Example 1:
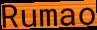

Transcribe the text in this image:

Rumao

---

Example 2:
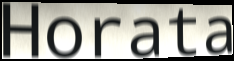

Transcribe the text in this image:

Horata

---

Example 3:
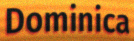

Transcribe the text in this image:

Dominica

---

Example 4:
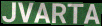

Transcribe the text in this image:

JVARTA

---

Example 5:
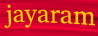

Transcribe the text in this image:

jayaram